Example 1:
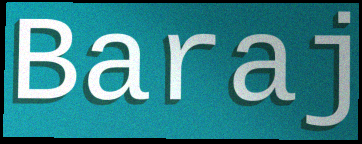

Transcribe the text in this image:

Baraj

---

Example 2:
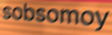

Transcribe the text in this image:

sobsomoy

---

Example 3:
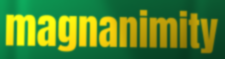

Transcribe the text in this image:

magnanimity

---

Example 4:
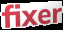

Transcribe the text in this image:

fixer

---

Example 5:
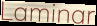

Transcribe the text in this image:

Laminar